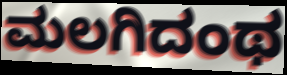
ಮಲಗಿದಂಥ